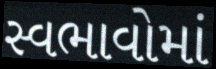
સ્વભાવોમાં